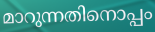
മാറുന്നതിനൊപ്പം